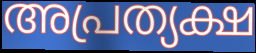
അപ്രത്യക്ഷ